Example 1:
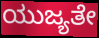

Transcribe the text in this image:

ಯುಜ್ಯತೇ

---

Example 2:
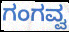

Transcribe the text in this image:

ಗಂಗವ್ವ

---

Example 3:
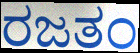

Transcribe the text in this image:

ರಜತಂ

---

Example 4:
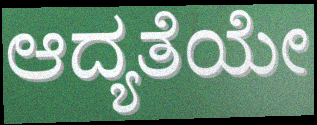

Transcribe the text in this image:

ಆದ್ಯತೆಯೇ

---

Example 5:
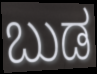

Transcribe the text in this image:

ಬುಡ